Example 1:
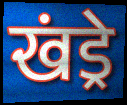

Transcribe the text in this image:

खंड्रे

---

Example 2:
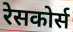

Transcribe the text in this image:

रेसकोर्स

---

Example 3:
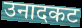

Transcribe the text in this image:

उनादकट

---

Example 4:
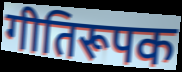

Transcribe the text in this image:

गीतिरूपक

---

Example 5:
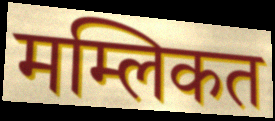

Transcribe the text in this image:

मम्लिकत